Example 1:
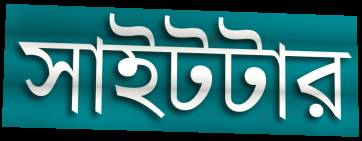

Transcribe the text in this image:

সাইটটার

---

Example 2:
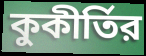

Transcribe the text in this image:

কুকীর্তির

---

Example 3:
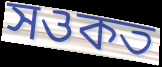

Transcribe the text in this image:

সওকত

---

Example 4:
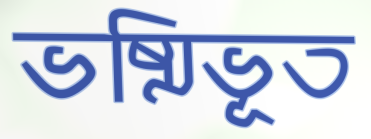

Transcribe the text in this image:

ভষ্মিভূত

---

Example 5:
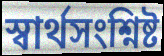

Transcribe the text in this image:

স্বার্থসংশ্নিষ্ট